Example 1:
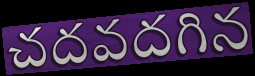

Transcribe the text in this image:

చదవదగిన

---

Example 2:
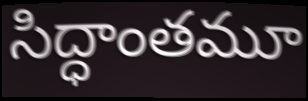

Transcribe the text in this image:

సిద్ధాంతమూ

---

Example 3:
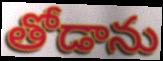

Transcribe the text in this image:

తోడాను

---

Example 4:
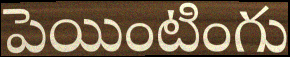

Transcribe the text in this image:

పెయింటింగు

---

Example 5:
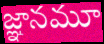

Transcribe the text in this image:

జ్ఞానమూ